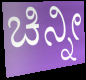
ಚಿನ್ನೀ